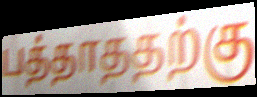
பத்தாததற்கு